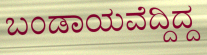
ಬಂಡಾಯವೆದ್ದಿದ್ದ